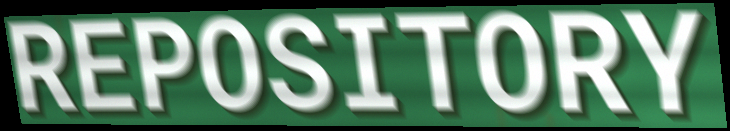
REPOSITORY